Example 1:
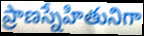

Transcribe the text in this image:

ప్రాణస్నేహితునిగా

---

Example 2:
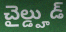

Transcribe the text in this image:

చైల్డ్హుడ్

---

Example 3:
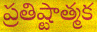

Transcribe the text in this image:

ప్రతిష్టాత్మక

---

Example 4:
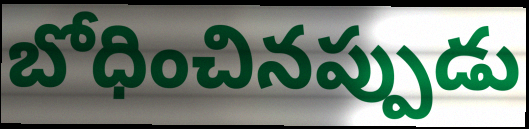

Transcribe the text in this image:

బోధించినప్పుడు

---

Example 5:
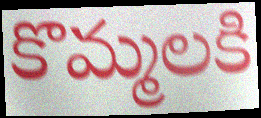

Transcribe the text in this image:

కొమ్మలకి